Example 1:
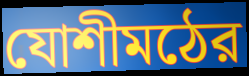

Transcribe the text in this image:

যোশীমঠের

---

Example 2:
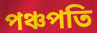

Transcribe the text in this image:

পঞ্চপতি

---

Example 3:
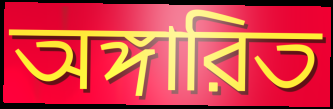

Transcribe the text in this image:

অঙ্গারিত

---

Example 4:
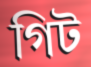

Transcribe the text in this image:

গিট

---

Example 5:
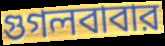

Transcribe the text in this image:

গুগলবাবার